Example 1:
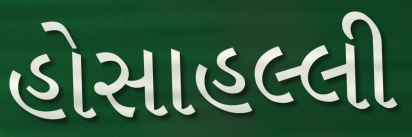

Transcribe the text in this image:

હોસાહલ્લી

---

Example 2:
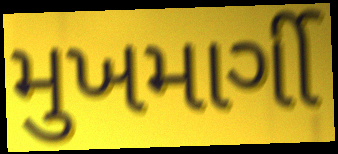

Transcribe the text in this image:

મુખમાર્ગી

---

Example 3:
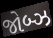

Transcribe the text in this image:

જોબ્ઝ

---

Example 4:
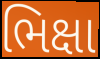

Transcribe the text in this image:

ભિક્ષા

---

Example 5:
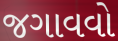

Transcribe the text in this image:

જગાવવો